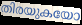
തിരയുകയോ